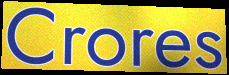
Crores